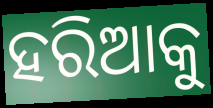
ହରିଆକୁ